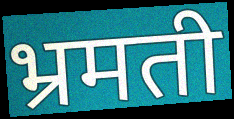
भ्रमती